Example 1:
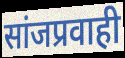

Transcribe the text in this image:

सांजप्रवाही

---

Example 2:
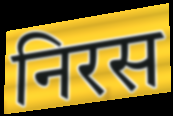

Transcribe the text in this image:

निरस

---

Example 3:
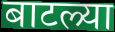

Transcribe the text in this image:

बाटल्या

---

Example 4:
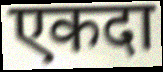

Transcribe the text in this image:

एकदा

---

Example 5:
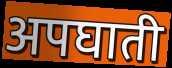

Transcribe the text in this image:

अपघाती